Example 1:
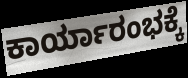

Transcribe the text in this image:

ಕಾರ್ಯಾರಂಭಕ್ಕೆ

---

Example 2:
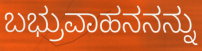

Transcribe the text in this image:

ಬಭ್ರುವಾಹನನನ್ನು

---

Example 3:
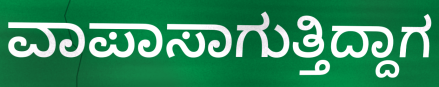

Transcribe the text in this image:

ವಾಪಾಸಾಗುತ್ತಿದ್ದಾಗ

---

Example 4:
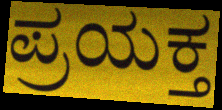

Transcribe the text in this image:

ಪ್ರಯಕ್ತ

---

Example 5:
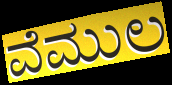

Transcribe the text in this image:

ವೆಮುಲ